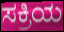
ಸಕ್ರಿಯ